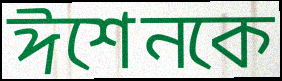
ঈশেনকে